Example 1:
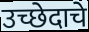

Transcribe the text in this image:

उच्छेदाचे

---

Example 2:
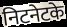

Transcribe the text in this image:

निटनेटके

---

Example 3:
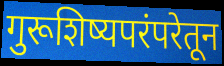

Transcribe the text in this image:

गुरूशिष्यपरंपरेतून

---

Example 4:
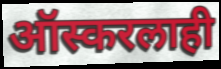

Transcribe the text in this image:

ऑस्करलाही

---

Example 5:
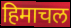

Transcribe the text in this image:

हिमाचल